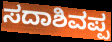
ಸದಾಶಿವಪ್ಪ